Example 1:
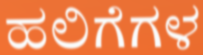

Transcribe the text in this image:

ಹಲಿಗೆಗಳ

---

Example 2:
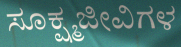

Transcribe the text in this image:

ಸೂಕ್ಷ್ಮಜೀವಿಗಳ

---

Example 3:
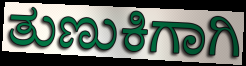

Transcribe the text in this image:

ತುಣುಕಿಗಾಗಿ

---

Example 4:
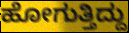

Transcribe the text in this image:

ಹೋಗುತ್ತಿದ್ದು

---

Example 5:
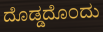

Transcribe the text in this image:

ದೊಡ್ಡದೊಂದು